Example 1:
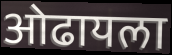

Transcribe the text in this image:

ओढायला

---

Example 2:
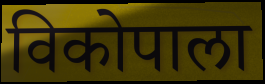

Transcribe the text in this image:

विकोपाला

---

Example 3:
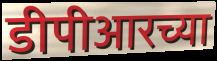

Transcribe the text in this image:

डीपीआरच्या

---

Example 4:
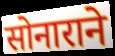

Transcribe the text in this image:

सोनाराने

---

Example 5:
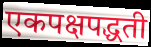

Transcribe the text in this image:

एकपक्षपद्धती